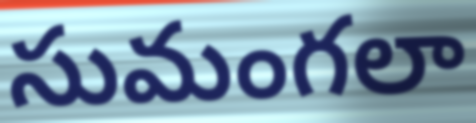
సుమంగలా